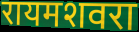
रायमशवरा